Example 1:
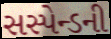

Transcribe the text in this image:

સસ્પેન્ડની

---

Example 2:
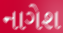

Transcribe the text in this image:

નાગેશ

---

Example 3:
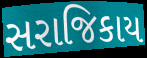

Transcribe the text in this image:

સરાજિકાય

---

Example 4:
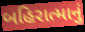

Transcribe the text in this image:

બહિરાત્માનું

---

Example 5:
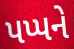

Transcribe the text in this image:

પપ્પને